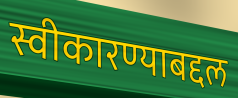
स्वीकारण्याबद्दल